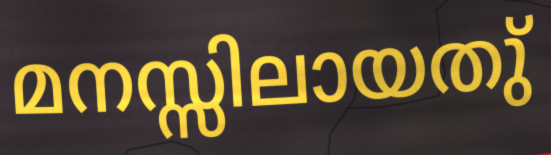
മനസ്സിലായതു്